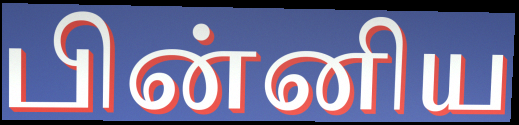
பின்னிய